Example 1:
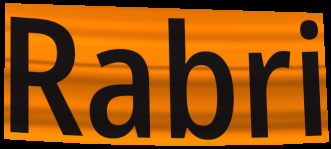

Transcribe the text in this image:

Rabri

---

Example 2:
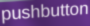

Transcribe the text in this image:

pushbutton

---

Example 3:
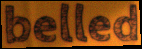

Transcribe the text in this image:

belled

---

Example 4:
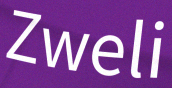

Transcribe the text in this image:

Zweli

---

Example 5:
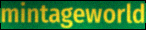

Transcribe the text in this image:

mintageworld